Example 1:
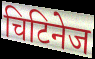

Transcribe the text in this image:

चिटिनेज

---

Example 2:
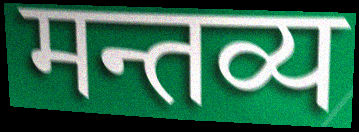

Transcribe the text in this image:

मन्तव्य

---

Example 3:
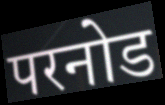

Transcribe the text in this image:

परनोड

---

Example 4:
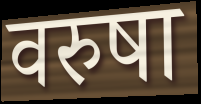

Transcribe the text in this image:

वरुषा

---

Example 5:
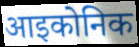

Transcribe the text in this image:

आइकोनिक